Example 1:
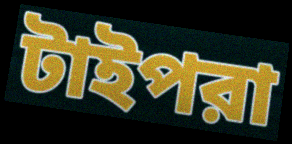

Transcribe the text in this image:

টাইপরা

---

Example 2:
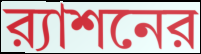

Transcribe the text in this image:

র‍্যাশনের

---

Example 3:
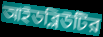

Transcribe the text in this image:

আইডব্লিউটির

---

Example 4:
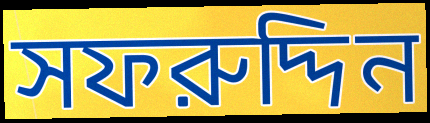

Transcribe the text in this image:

সফরুদ্দিন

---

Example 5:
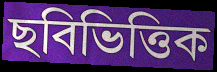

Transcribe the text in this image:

ছবিভিত্তিক